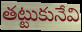
తట్టుకునేవి